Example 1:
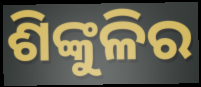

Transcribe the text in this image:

ଶିଙ୍କୁଳିର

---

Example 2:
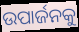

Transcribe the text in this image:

ଉପାର୍ଜନକୁ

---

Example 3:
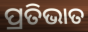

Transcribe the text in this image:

ପ୍ରତିଭାତ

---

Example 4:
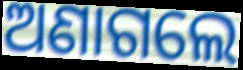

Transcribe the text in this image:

ଅଣାଗଲେ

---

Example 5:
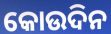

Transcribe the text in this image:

କୋଉଦିନ